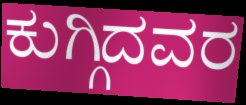
ಕುಗ್ಗಿದವರ